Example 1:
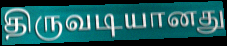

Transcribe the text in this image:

திருவடியானது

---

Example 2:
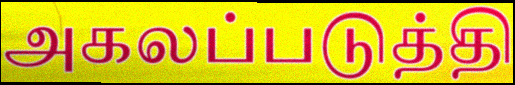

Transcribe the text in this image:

அகலப்படுத்தி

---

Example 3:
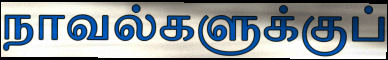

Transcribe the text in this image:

நாவல்களுக்குப்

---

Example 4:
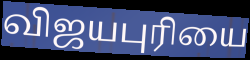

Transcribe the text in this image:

விஜயபுரியை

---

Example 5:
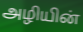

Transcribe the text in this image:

அழியின்